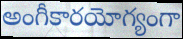
అంగీకారయోగ్యంగా